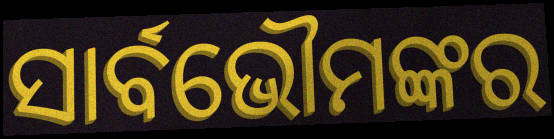
ସାର୍ବଭୌମଙ୍କର